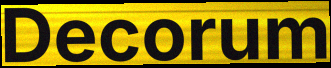
Decorum